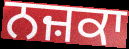
ਨਜ਼ਕਾ